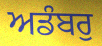
ਅਡੰਬਰੁ